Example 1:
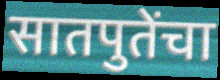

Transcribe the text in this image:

सातपुतेंचा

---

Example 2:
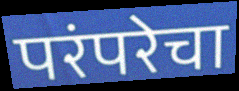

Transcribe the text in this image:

परंपरेचा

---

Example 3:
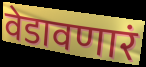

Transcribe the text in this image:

वेडावणारं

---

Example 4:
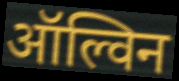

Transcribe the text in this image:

ऑल्विन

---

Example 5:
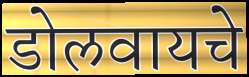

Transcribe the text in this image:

डोलवायचे